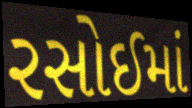
રસોઈમાં